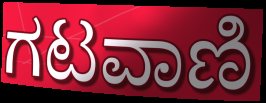
ಗಟವಾಣಿ